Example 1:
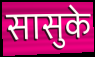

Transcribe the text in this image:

सासुके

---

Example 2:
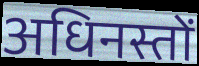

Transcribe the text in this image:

अधिनस्तों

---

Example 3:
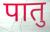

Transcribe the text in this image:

पातु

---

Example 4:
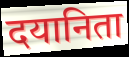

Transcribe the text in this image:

दयानिता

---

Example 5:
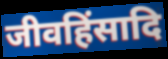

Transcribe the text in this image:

जीवहिंसादि